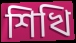
শিখি